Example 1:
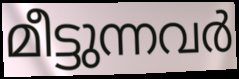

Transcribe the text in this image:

മീട്ടുന്നവർ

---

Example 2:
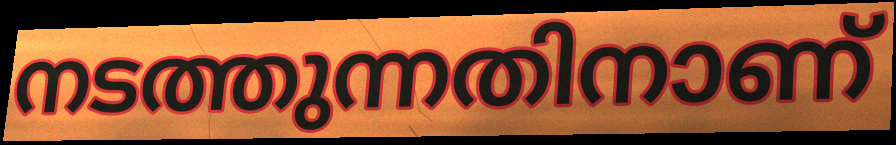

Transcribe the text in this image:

നടത്തുന്നതിനാണ്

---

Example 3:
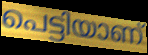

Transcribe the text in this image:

പെട്ടിയാണ്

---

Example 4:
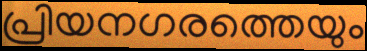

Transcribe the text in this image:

പ്രിയനഗരത്തെയും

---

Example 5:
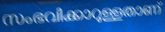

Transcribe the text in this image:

സംഭവിക്കാറുള്ളതാണ്